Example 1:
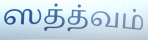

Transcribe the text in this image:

ஸத்த்வம்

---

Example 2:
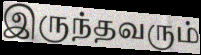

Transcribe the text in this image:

இருந்தவரும்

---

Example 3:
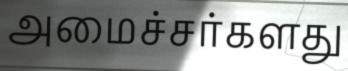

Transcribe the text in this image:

அமைச்சர்களது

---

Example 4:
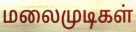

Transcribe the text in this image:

மலைமுடிகள்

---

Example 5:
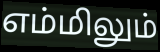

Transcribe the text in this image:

எம்மிலும்